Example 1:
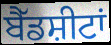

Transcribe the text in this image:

ਬੈੱਡਸ਼ੀਟਾਂ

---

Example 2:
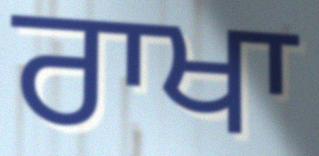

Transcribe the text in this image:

ਰਾਖਾ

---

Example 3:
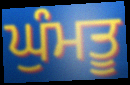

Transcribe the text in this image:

ਘੁੰਮਤੂ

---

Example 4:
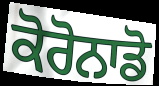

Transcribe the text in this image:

ਕੋਰੋਨਾਡੋ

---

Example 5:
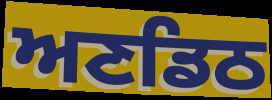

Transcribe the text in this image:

ਅਣਡਿਠ